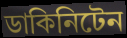
ডাকিনিটেন